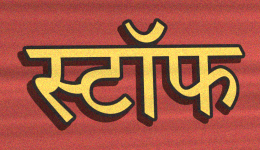
स्टॉफ